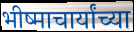
भीष्माचार्यांच्या